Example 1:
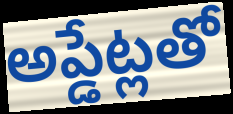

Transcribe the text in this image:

అప్డేట్లతో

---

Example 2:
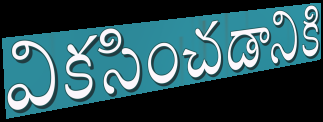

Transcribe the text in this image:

వికసించడానికి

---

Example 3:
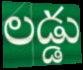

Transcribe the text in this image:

లడ్డు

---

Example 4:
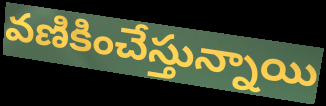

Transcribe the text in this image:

వణికించేస్తున్నాయి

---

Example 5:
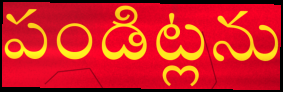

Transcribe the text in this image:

పండిట్లను